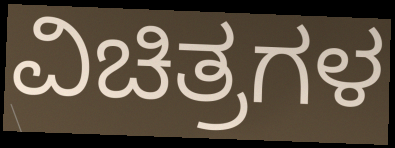
ವಿಚಿತ್ರಗಳ